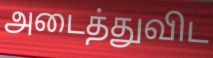
அடைத்துவிட